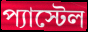
প্যাস্টেল